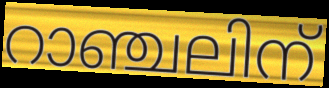
റാഞ്ചലിന്